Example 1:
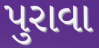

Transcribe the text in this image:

પુરાવા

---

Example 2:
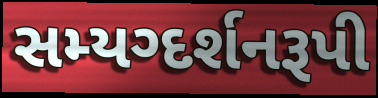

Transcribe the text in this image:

સમ્યગ્દર્શનરૂપી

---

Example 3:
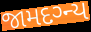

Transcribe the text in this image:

જામદગ્ન્ય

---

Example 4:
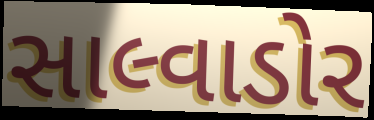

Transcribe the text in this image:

સાલ્વાડોર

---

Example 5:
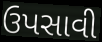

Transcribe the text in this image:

ઉપસાવી